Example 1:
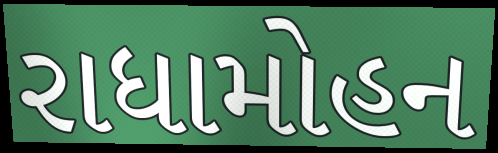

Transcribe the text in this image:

રાધામોહન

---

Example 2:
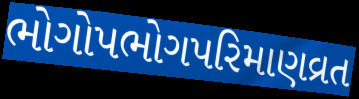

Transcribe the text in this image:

ભોગોપભોગપરિમાણવ્રત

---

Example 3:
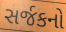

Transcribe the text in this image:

સર્જકનો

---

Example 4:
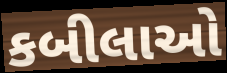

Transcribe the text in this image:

કબીલાઓ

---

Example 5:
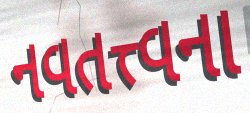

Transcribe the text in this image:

નવતત્ત્વના